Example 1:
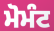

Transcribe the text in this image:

ਮੋਮੰਟ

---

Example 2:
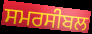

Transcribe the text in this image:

ਸਮਰਸੀਬਲ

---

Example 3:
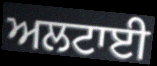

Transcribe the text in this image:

ਅਲਟਾਈ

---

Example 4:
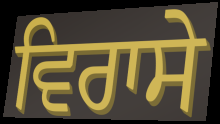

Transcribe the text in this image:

ਵਿਰਾਸੇ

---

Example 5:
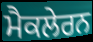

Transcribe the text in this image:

ਮੈਕਲੇਰਨ